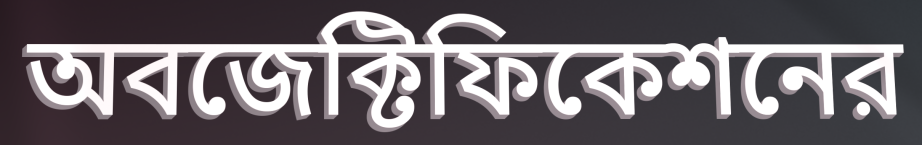
অবজেক্টিফিকেশনের